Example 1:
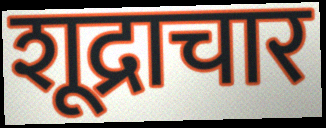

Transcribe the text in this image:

शूद्राचार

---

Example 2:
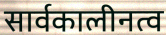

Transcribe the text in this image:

सार्वकालीनत्व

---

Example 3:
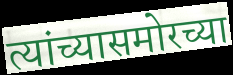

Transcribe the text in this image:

त्यांच्यासमोरच्या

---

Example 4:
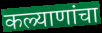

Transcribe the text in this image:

कल्याणांचा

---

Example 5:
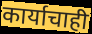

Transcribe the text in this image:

कार्याचाही